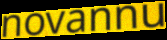
novannu